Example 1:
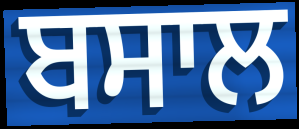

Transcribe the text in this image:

ਬਸਾਲ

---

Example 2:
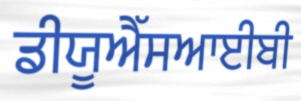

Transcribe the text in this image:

ਡੀਯੂਐੱਸਆਈਬੀ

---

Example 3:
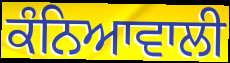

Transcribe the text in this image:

ਕੰਨਿਆਵਾਲੀ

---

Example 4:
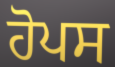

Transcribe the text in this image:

ਹੋਪਸ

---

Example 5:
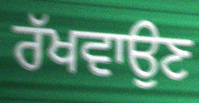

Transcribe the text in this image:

ਰੱਖਵਾਉਣ